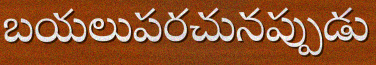
బయలుపరచునప్పుడు